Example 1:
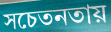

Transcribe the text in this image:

সচেতনতায়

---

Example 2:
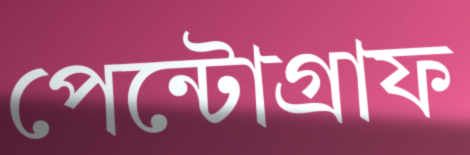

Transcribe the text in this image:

পেন্টোগ্রাফ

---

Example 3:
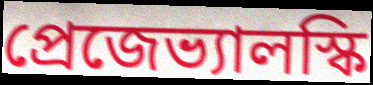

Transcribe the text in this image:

প্রেজেভ্যালস্কি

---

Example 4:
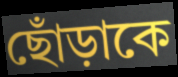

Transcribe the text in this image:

ছোঁড়াকে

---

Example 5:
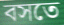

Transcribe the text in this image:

বসতে